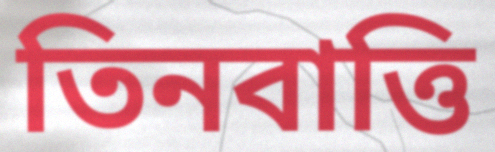
তিনবাত্তি